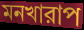
মনখারাপ